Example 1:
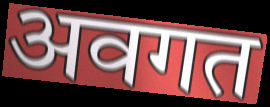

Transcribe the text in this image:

अवगत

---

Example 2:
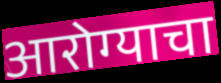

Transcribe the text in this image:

आरोग्याचा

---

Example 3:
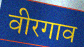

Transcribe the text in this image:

वीरगाव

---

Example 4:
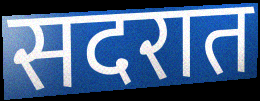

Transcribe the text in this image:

सदरात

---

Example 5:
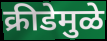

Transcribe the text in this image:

क्रीडेमुळे